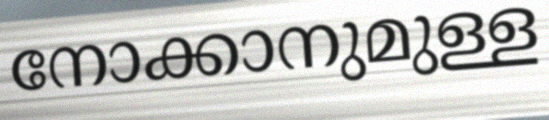
നോക്കാനുമുള്ള